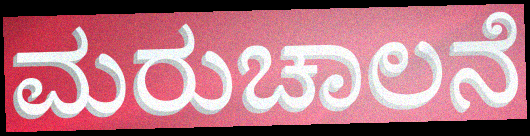
ಮರುಚಾಲನೆ